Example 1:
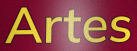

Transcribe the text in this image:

Artes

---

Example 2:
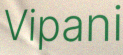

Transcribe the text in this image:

Vipani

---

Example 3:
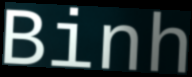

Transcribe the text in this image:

Binh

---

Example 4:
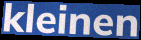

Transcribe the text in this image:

kleinen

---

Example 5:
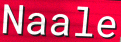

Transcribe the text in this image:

Naale